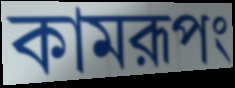
কামরূপং